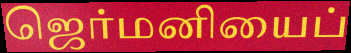
ஜெர்மனியைப்